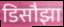
डिसौझा